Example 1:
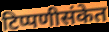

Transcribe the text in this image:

टिप्पणीसंकेत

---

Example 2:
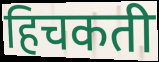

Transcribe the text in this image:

हिचकती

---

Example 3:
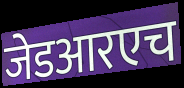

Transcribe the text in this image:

जेडआरएच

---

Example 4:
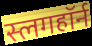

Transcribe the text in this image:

स्लगहॉर्न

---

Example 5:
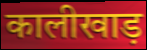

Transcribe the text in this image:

कालीखाड़